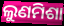
ଲୁଣମିଶା